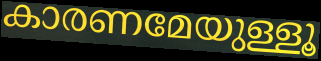
കാരണമേയുള്ളൂ